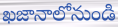
ఖజానాలోనుండి